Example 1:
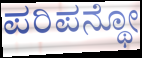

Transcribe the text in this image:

ಪರಿಪನ್ಥೋ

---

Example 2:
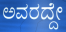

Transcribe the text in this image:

ಅವರದ್ದೇ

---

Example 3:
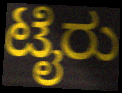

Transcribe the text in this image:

ಟೈರು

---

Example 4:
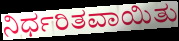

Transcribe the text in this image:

ನಿರ್ಧರಿತವಾಯಿತು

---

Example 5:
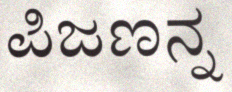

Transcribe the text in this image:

ಪಿಜಣನ್ನ